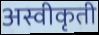
अस्वीकृती